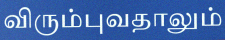
விரும்புவதாலும்